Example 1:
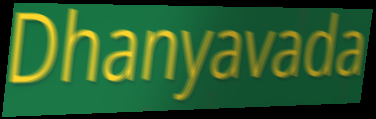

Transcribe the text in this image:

Dhanyavada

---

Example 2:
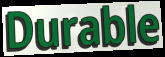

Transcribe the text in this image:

Durable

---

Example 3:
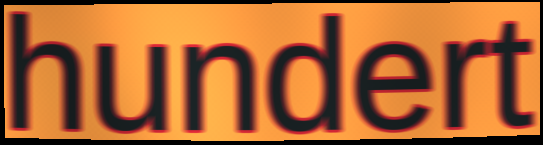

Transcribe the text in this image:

hundert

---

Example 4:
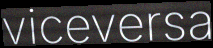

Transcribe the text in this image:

viceversa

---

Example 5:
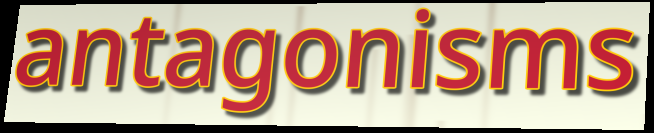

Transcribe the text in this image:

antagonisms